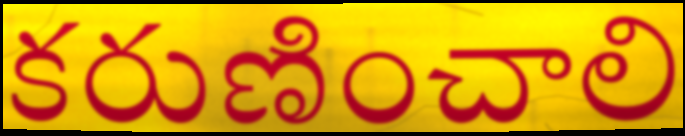
కరుణించాలి